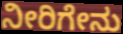
ನೀರಿಗೇನು